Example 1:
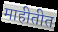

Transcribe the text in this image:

माहीतीत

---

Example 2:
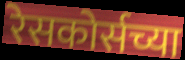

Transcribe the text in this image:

रेसकोर्सच्या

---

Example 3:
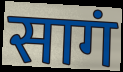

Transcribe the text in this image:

सागं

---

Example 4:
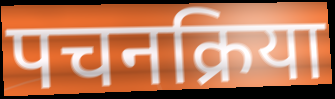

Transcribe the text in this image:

पचनक्रिया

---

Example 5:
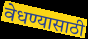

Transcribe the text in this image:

वेधण्यासाठी